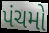
પંચમો